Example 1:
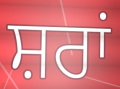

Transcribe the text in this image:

ਸ਼ਰਾਂ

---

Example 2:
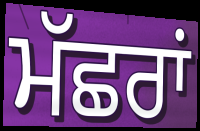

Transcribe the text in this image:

ਮੱਛਰਾਂ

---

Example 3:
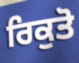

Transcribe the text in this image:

ਰਿਕੁਤੋ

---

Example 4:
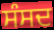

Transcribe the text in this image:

ਸੰਸਦ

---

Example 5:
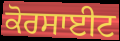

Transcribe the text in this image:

ਕੋਰਸਾਈਟ